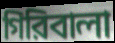
গিরিবালা